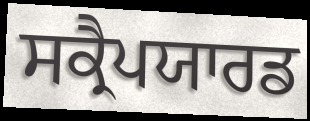
ਸਕ੍ਰੈਪਯਾਰਡ